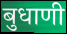
बुधाणी